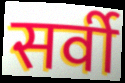
सर्वी